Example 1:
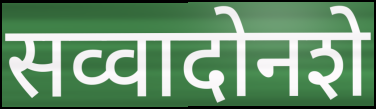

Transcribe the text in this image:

सव्वादोनशे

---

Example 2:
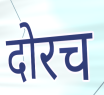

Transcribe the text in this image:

दोरच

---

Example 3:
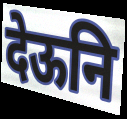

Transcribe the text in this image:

देऊनि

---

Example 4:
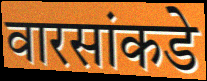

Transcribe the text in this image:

वारसांकडे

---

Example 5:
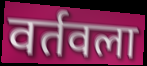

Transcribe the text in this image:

वर्तवला